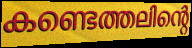
കണ്ടെത്തലിന്റെ